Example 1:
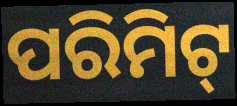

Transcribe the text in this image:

ପରିମିଟ୍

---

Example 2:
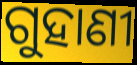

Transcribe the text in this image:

ଗୁହାଣୀ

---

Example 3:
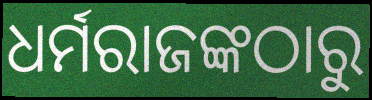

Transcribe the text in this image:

ଧର୍ମରାଜଙ୍କଠାରୁ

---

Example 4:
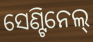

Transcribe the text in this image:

ସେଣ୍ଟିନେଲ୍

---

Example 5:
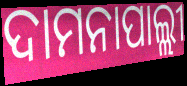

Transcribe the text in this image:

ଦାମନାପାଲ୍ଲୀ